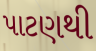
પાટણથી